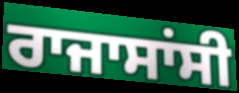
ਰਾਜਾਸਾਂਸੀ